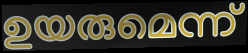
ഉയരുമെന്ന്